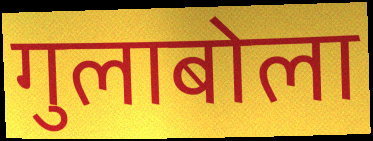
गुलाबोला